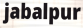
jabalpur